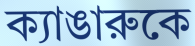
ক্যাঙারুকে